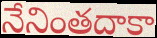
నేనింతదాకా